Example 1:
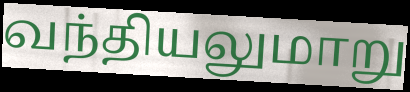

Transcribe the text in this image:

வந்தியலுமாறு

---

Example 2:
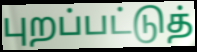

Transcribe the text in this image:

புறப்பட்டுத்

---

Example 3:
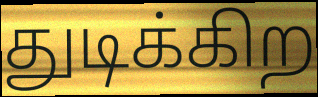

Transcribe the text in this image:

துடிக்கிற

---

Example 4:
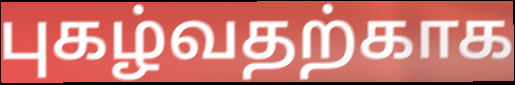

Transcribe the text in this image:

புகழ்வதற்காக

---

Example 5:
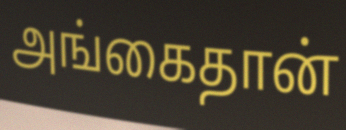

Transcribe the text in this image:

அங்கைதான்